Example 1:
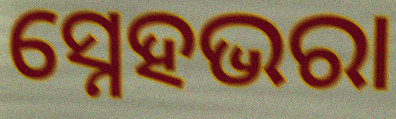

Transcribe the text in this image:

ସ୍ନେହଭରା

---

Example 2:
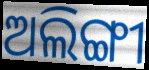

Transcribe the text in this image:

ଅଲିଙ୍ଗୀ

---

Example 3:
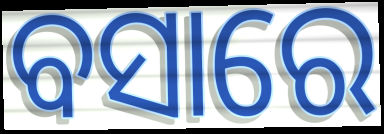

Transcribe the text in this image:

ବସାରେ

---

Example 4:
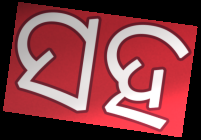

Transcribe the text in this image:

ସହ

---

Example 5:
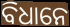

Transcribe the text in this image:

ବିଧାନେ